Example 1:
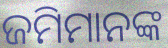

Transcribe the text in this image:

ଜମିମାନଙ୍କ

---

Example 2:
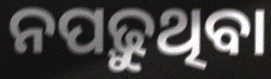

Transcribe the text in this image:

ନପଢ଼ୁଥିବା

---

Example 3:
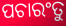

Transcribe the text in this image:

ପଚାରଂତୁ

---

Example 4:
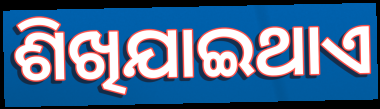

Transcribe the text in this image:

ଶିଖିଯାଇଥାଏ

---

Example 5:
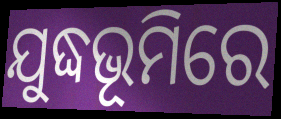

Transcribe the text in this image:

ଯୁଦ୍ଧଭୂମିରେ